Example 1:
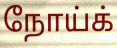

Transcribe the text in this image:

நோய்க்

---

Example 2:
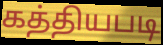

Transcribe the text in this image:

கத்தியபடி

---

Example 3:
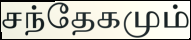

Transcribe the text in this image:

சந்தேகமும்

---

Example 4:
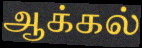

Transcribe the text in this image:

ஆக்கல்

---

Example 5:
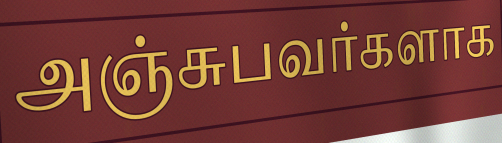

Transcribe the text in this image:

அஞ்சுபவர்களாக